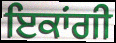
ਇਕਾਂਗੀ